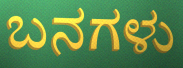
ಬನಗಳು